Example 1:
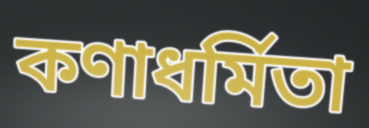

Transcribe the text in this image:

কণাধর্মিতা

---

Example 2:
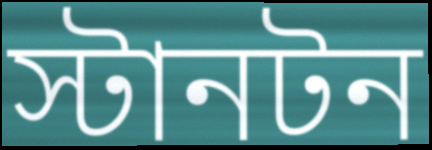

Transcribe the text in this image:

স্টানটন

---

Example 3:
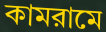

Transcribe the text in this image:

কামরামে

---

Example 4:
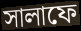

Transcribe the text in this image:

সালাফে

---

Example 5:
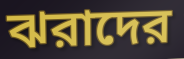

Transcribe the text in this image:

ঝরাদের